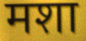
मशा